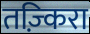
तज़्किरा